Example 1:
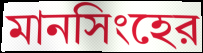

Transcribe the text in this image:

মানসিংহের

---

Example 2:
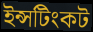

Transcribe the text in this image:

ইন্সটিংকট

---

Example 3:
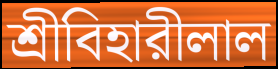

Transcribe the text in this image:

শ্রীবিহারীলাল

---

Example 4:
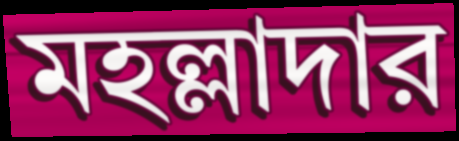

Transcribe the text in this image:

মহল্লাদার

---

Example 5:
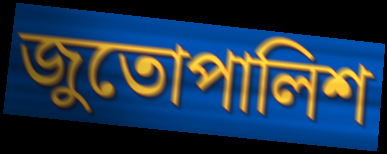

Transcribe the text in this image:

জুতোপালিশ